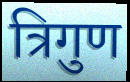
त्रिगुण